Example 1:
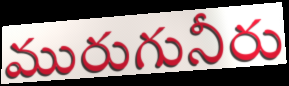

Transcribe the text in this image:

మురుగునీరు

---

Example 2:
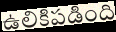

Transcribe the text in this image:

ఉలికిపడింది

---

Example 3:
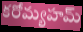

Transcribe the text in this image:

కరోమ్యహమ్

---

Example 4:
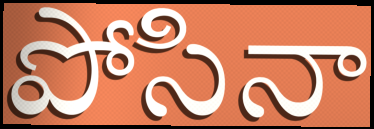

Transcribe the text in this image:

పోసినా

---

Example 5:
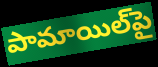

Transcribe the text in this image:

పామాయిల్‌పై